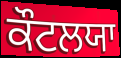
ਕੌਟਲਯਾ